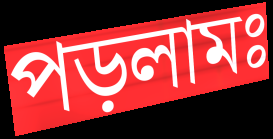
পড়লামঃ